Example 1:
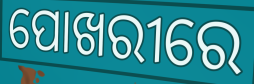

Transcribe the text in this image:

ପୋଖରୀରେ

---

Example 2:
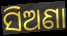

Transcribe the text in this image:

ସିଅଣା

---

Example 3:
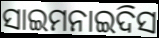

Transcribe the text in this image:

ସାଇମନାଇଦିସ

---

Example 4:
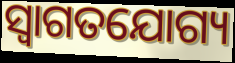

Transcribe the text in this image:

ସ୍ବାଗତଯୋଗ୍ୟ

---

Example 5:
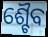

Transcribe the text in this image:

ଶ୍ଚୈବ